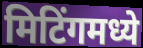
मिटिंगमध्ये